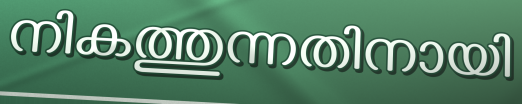
നികത്തുന്നതിനായി